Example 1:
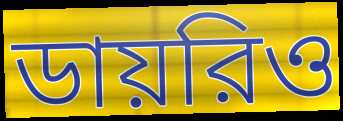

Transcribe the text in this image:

ডায়রিও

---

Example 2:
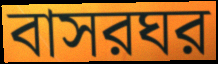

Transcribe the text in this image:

বাসরঘর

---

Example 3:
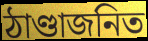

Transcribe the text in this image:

ঠাণ্ডাজনিত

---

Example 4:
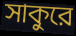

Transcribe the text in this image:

সাকুরে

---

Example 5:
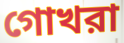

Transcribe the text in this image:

গোখরা